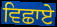
ਵਿਛਾਏ